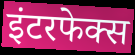
इंटरफेक्स